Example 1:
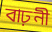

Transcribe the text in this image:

বাঢ়নী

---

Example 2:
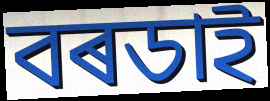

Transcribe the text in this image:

বৰডাই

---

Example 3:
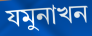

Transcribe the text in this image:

যমুনাখন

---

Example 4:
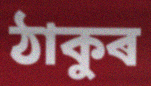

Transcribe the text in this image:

ঠাকুৰ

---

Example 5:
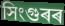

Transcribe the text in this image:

সিংগুৰৰ